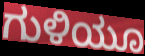
ಗುಳಿಯೂ